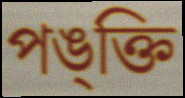
পঙ্‌ক্তি